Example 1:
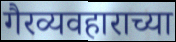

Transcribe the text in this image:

गैरव्यवहाराच्या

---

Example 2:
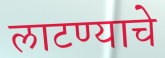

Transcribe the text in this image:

लाटण्याचे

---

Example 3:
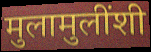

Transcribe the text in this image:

मुलामुलींशी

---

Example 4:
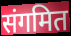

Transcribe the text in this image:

संगमित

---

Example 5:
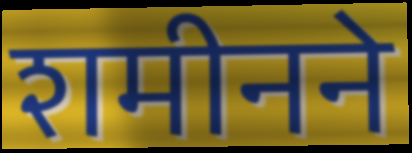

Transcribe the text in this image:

शमीनने